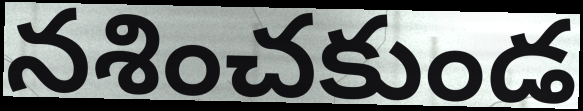
నశించకుండ